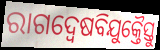
ରାଗଦ୍ୱେଷବିଯୁକ୍ତୈସ୍ତୁ